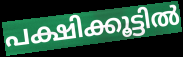
പക്ഷിക്കൂട്ടിൽ